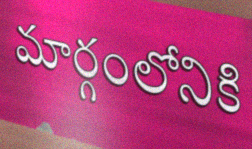
మార్గంలోనికి